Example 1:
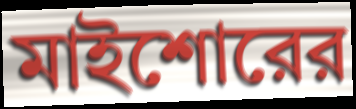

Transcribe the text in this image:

মাইশোরের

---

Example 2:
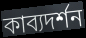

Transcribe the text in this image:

কাব্যদর্শন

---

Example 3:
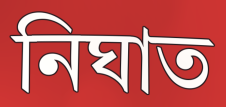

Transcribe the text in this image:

নিঘাত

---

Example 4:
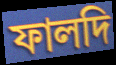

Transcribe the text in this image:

ফালদি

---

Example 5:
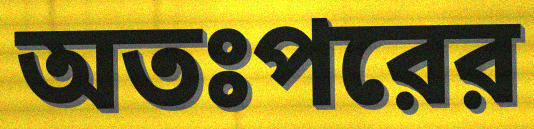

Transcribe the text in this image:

অতঃপরের